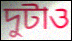
দুটাও